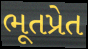
ભૂતપ્રેત